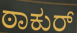
ಠಾಕುರ್